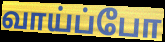
வாய்ப்போ